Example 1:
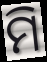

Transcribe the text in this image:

ମି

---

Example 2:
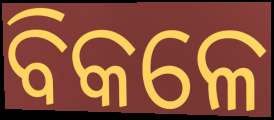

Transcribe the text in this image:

ବିକଳେ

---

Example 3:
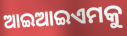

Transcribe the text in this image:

ଆଇଆଇଏମକୁ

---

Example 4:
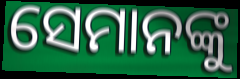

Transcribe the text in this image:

ସେମାନଙ୍କୁ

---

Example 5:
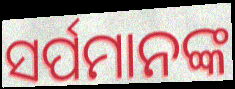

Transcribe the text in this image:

ସର୍ପମାନଙ୍କ